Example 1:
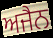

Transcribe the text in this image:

ਅਜੈਨ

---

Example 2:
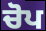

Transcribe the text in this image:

ਚੋਪ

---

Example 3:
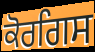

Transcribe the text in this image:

ਕੋਰਗਿਸ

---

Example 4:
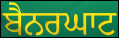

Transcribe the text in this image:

ਬੈਨਰਘਾਟ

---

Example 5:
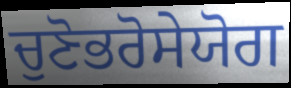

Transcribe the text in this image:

ਚੁਣੋਭਰੋਸੇਯੋਗ